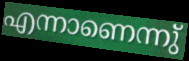
എന്നാണെന്നു്